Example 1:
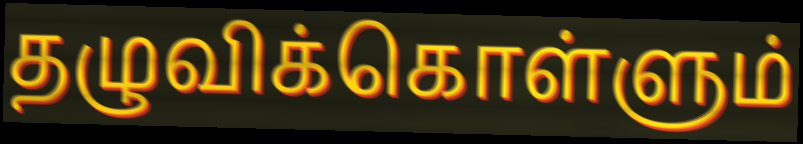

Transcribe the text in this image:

தழுவிக்கொள்ளும்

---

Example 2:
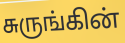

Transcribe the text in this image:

சுருங்கின்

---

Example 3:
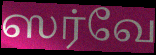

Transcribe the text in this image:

ஸர்வே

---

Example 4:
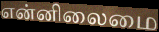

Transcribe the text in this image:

என்னிலைமை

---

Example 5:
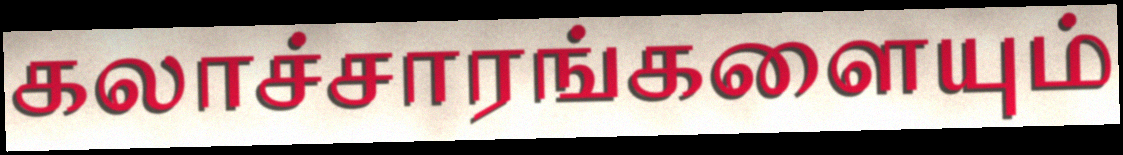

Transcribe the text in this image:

கலாச்சாரங்களையும்